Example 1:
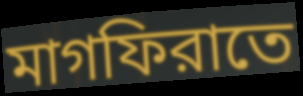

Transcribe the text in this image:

মাগফিরাতে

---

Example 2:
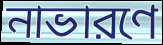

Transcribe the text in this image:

নাভারণে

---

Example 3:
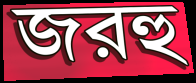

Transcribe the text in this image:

জরহু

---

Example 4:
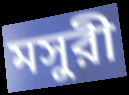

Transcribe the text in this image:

মসুরী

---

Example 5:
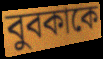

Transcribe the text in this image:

বুবকাকে